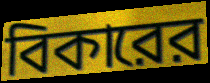
বিকারের